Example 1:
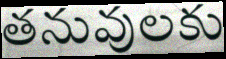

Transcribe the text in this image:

తనువులకు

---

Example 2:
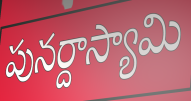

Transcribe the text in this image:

పునర్దాస్యామి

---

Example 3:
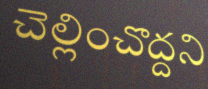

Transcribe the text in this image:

చెల్లించొద్దని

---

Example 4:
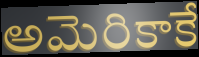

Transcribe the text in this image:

అమెరికాకే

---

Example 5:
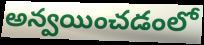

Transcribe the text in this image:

అన్వయించడంలో